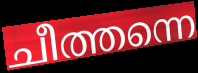
ചീത്തന്നെ